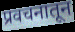
प्रवचनातून